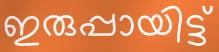
ഇരുപ്പായിട്ട്